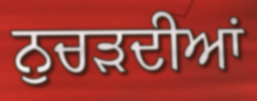
ਨੁਚੜਦੀਆਂ